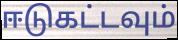
ஈடுகட்டவும்